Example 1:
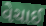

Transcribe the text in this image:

વેચાઈ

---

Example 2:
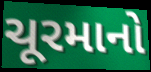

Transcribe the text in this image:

ચૂરમાનો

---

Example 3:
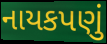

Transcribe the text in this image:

નાયકપણું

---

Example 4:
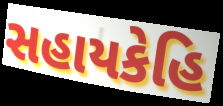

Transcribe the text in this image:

સહાયકેહિ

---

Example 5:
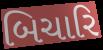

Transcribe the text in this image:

બિચારિ